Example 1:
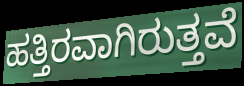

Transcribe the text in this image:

ಹತ್ತಿರವಾಗಿರುತ್ತವೆ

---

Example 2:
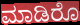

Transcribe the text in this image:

ಮಾಡಿರೊ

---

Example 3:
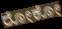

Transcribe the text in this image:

ರೋಕೋ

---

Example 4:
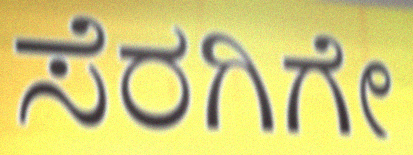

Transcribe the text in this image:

ಸೆರಗಿಗೇ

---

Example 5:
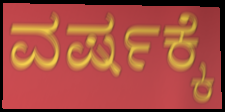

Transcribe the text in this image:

ವರ್ಷಕ್ಕೆ